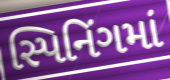
સ્પિનિંગમાં